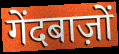
गेंदबाज़ों